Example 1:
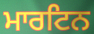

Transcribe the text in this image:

ਮਾਰਟਿਨ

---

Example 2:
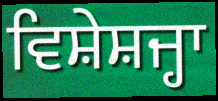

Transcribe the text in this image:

ਵਿਸ਼ੇਸ਼ਜ੍ਹਾ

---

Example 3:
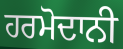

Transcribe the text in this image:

ਹਰਮੋਦਾਨੀ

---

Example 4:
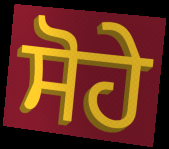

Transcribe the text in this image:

ਸੋਹੇ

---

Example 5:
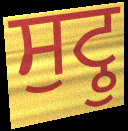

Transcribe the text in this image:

ਸੁਟ੍ਠੁ